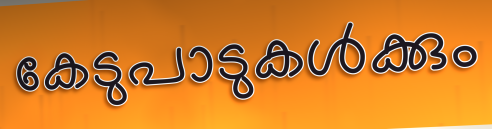
കേടുപാടുകൾക്കും